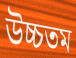
উচ্চতম